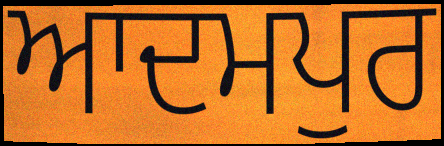
ਆਦਮਪੁਰ